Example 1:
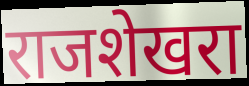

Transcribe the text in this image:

राजशेखरा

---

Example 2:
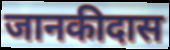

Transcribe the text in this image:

जानकीदास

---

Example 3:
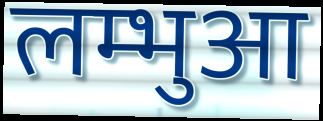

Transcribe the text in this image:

लम्भुआ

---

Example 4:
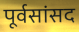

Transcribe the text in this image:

पूर्वसांसद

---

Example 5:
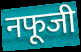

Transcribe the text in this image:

नफूजी